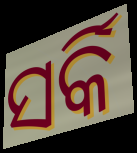
ସର୍କି